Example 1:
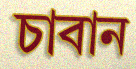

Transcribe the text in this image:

চাবান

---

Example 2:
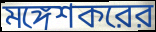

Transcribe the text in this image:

মঙ্গেশকরের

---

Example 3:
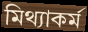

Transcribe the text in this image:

মিথ্যাকর্ম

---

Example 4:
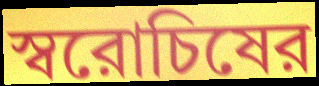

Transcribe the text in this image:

স্বরোচিষের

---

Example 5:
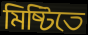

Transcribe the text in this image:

মিষ্টিতে